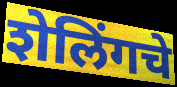
शेलिंगचे